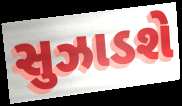
સુઝાડશે